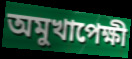
অমুখাপেক্ষী